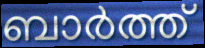
ബാർത്ത്